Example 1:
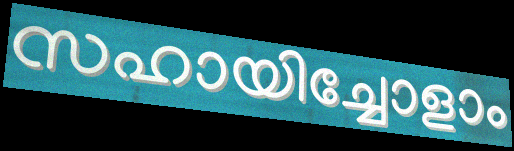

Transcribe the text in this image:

സഹായിച്ചോളാം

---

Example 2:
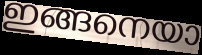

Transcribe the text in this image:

ഇങ്ങനെയാ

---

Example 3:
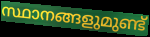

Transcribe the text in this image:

സ്ഥാനങ്ങളുമുണ്ട്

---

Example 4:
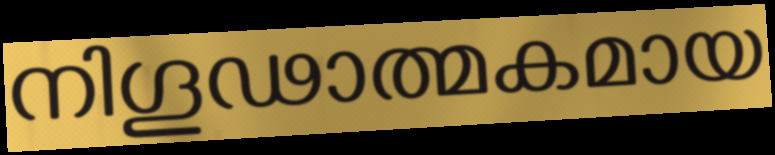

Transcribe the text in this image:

നിഗൂഢാത്മകമായ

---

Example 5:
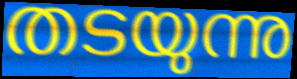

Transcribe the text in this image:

തടയുന്നു